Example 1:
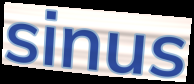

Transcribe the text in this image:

sinus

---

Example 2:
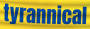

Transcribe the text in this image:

tyrannical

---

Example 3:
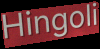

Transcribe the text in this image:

Hingoli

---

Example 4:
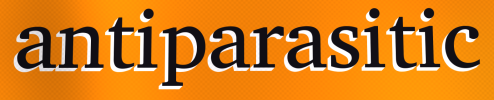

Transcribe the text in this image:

antiparasitic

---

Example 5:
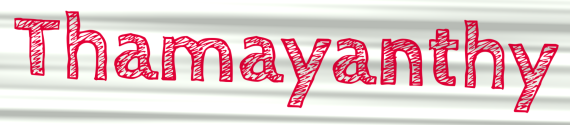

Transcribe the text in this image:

Thamayanthy